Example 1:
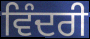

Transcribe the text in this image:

ਵਿੰਦਰੀ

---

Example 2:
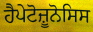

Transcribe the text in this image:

ਹੈਪੇਟੋਜ਼ੂਨੋਸਿਸ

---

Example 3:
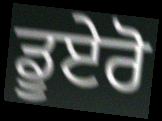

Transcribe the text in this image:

ਡੂਏਰੋ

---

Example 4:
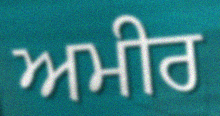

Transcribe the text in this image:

ਅਮੀਰ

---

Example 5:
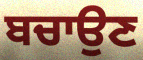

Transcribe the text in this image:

ਬਚਾਉਣ